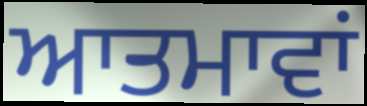
ਆਤਮਾਵਾਂ